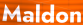
Maldon